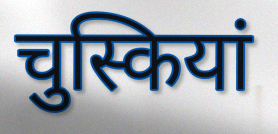
चुस्कियां